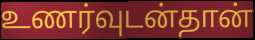
உணர்வுடன்தான்